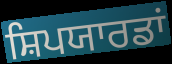
ਸ਼ਿਪਯਾਰਡਾਂ